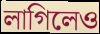
লাগিলেও